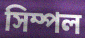
সিম্পল